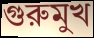
গুরুমুখ